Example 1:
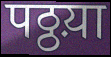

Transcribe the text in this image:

पठ्ठय़ा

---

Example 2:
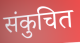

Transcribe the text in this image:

संकुचित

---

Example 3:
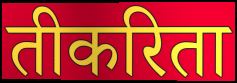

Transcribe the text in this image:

तीकरिता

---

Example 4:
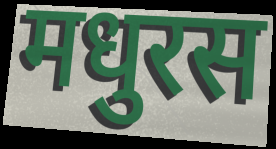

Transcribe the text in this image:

मधुरस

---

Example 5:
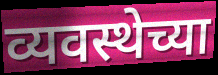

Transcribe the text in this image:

व्यवस्थेच्या